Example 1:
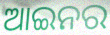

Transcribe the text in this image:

ଆଇନର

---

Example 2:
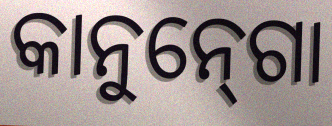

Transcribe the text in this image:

କାନୁନ୍‍ଗୋ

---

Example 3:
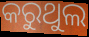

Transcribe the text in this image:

କରୁଥୁଲ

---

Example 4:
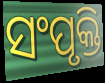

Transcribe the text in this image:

ସଂପୃକ୍ତି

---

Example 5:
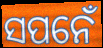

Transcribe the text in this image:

ସପନେଁ